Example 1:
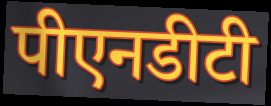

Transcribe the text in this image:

पीएनडीटी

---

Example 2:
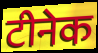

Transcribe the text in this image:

टीनेक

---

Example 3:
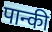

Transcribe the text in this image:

पान्की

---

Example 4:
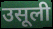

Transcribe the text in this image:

उसूली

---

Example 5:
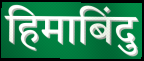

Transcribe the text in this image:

हिमाबिंदु